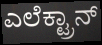
ಎಲೆಕ್ಟ್ರಾನ್